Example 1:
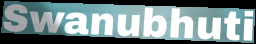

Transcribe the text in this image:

Swanubhuti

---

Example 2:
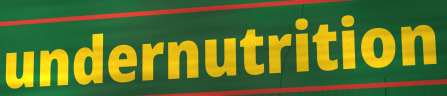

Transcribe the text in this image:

undernutrition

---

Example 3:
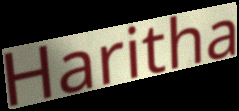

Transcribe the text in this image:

Haritha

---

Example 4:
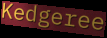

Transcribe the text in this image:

Kedgeree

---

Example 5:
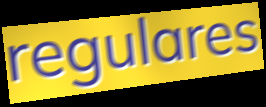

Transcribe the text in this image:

regulares